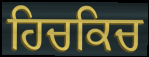
ਹਿਚਕਿਚ